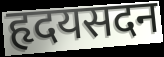
हृदयसदन